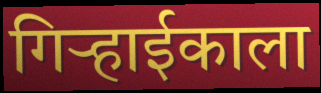
गिऱ्हाईकाला